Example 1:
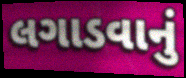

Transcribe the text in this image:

લગાડવાનું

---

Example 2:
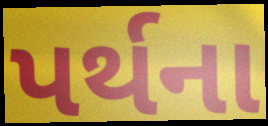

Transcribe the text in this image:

પર્થના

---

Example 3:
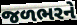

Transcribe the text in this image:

જળભરને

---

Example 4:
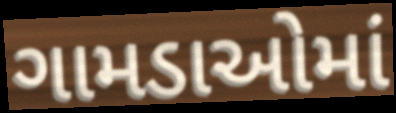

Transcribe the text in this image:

ગામડાઓમાં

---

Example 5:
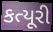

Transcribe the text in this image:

કત્યૂરી